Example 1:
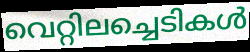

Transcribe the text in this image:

വെറ്റിലച്ചെടികൾ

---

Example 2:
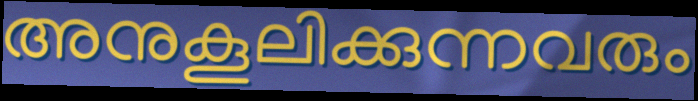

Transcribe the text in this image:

അനുകൂലിക്കുന്നവരും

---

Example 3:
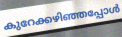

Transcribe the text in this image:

കുറേക്കഴിഞ്ഞപ്പോൾ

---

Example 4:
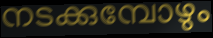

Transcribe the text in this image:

നടക്കുമ്പോഴും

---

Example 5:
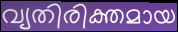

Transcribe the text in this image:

വ്യതിരിക്തമായ